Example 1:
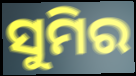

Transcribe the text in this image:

ସୁମିର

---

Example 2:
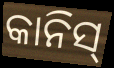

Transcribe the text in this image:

କାନିସ୍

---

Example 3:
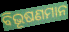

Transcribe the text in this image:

ବିଭୂଷଣମାନ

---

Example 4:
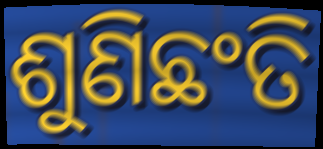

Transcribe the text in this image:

ଶୁଣିଛଂତି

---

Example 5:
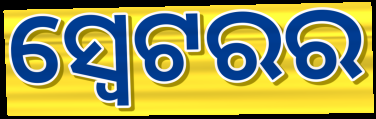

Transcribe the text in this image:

ସ୍ୱେଟରର